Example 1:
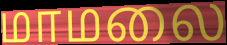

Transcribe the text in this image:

மாமலை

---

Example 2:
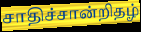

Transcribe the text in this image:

சாதிச்சான்றிதழ்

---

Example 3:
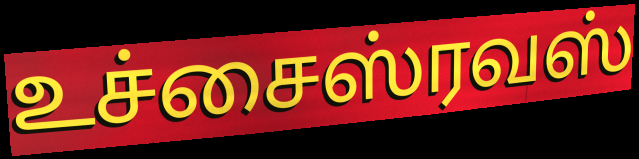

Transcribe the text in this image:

உச்சைஸ்ரவஸ்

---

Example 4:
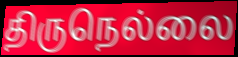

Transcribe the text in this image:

திருநெல்லை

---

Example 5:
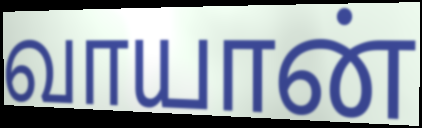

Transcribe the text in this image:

வாயான்